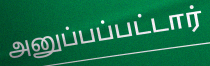
அனுப்பப்பட்டார்